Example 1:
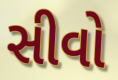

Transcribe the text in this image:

સીવો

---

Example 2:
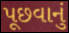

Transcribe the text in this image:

પૂછવાનું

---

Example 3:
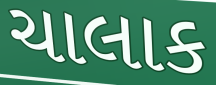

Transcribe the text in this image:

ચાલાક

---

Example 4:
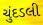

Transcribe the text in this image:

ચુંદડલી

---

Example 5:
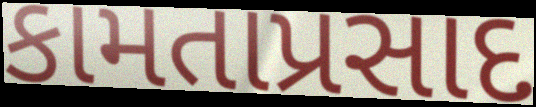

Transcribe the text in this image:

કામતાપ્રસાદ